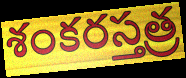
శంకరస్తత్ర